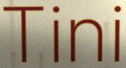
Tini